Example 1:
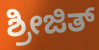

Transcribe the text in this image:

ಶ್ರೀಜಿತ್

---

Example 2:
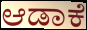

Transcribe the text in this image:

ಆಡಾಕೆ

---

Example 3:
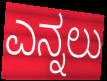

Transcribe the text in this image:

ಎನ್ನಲು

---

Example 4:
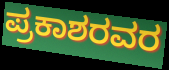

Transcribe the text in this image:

ಪ್ರಕಾಶರವರ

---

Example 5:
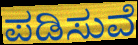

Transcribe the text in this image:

ಪಡಿಸುವೆ